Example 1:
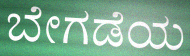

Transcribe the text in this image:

ಬೇಗಡೆಯ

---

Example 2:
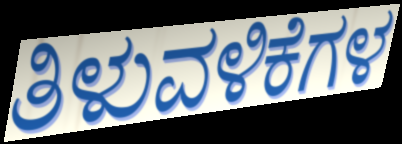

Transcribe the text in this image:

ತಿಳುವಳಿಕೆಗಳ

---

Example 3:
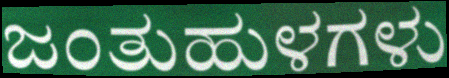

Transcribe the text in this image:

ಜಂತುಹುಳಗಳು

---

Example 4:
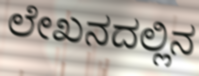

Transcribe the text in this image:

ಲೇಖನದಲ್ಲಿನ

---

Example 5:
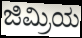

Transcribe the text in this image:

ಜಿಮ್ರಿಯ